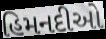
હિમનદીઓ